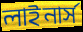
লাইনার্স